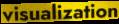
visualization